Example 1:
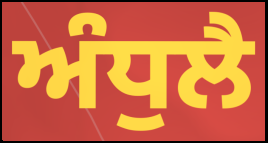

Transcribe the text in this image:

ਅੰਧੁਲੈ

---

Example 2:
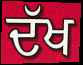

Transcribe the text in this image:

ਦੱਖ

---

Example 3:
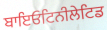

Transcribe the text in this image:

ਬਾਇਓਟਿਨੀਲੇਟਿਡ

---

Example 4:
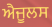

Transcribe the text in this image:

ਐਜੂਲਸ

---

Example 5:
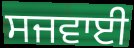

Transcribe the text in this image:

ਸਜਵਾਈ